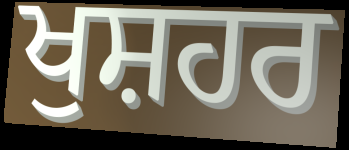
ਖੁਸ਼ਹਰ